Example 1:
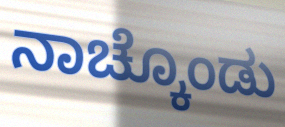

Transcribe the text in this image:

ನಾಚ್ಕೊಂಡು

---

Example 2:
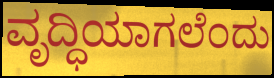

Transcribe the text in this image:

ವೃದ್ಧಿಯಾಗಲೆಂದು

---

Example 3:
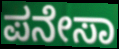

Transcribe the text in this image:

ಪನೇಸಾ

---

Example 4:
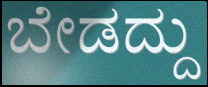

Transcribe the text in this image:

ಬೇಡದ್ದು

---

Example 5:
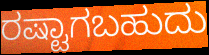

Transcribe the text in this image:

ರಷ್ಟಾಗಬಹುದು